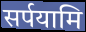
सर्पयामि